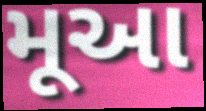
મૂઆ